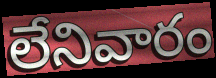
లేనివారం